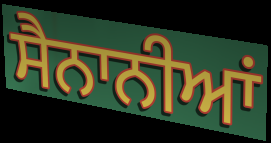
ਸੈਨਾਨੀਆਂ